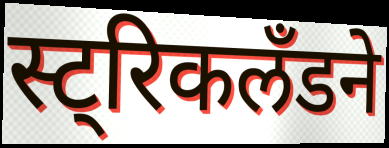
स्ट्रिकलँडने